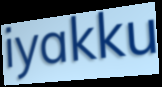
iyakku